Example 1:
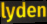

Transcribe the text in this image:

lyden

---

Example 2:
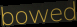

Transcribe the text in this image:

bowed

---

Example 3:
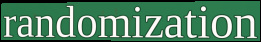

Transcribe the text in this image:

randomization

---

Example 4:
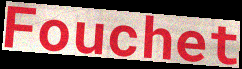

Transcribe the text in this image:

Fouchet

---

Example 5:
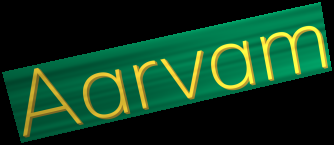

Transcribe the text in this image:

Aarvam